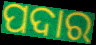
ପଦାର